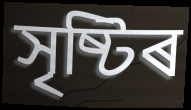
সৃষ্টিৰ